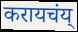
करायचंय्